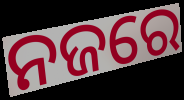
ନଜରେ